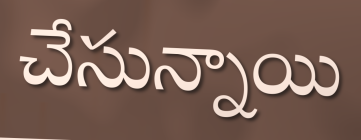
చేసున్నాయి